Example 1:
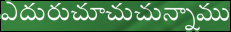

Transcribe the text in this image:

ఎదురుచూచుచున్నాము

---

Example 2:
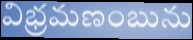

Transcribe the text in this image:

విభ్రమణంబును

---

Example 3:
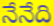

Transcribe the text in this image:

నేనేది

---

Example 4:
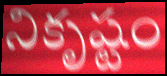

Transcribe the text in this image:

నికృష్టం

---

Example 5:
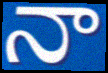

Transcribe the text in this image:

నా